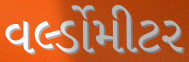
વર્લ્ડોમીટર